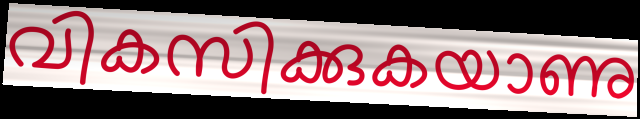
വികസിക്കുകയാണു